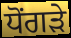
ਧੋਂਗੜੇ